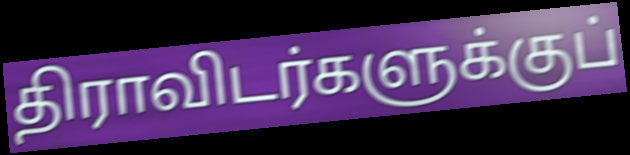
திராவிடர்களுக்குப்